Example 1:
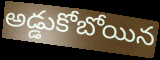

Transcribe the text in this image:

అడ్డుకోబోయిన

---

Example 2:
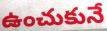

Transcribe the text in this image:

ఉంచుకునే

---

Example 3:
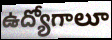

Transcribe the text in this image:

ఉద్యోగాలూ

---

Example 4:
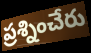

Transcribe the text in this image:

ప్రశ్నించేరు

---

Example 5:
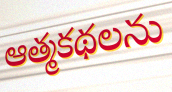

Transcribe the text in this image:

ఆత్మకథలను